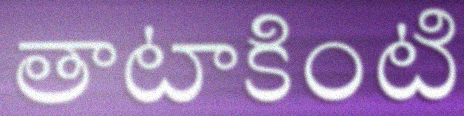
తాటాకింటి